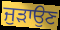
ਜੁੜਾਉਣ